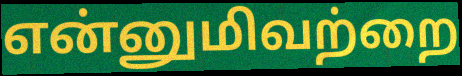
என்னுமிவற்றை